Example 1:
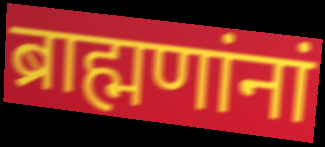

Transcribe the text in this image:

ब्राह्मणांनां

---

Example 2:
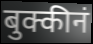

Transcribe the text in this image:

बुक्कीनं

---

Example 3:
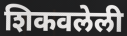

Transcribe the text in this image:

शिकवलेली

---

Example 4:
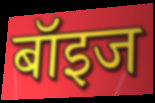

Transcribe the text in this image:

बॉइज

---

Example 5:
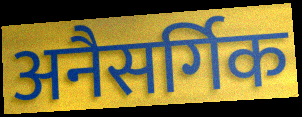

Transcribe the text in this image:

अनैसर्गिक